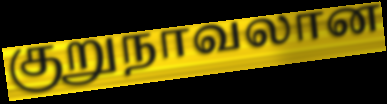
குறுநாவலான